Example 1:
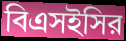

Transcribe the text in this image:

বিএসইসির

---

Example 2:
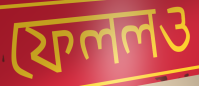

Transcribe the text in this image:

ফেললও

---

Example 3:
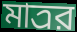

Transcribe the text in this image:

মাত্রর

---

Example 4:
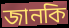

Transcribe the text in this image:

জানকি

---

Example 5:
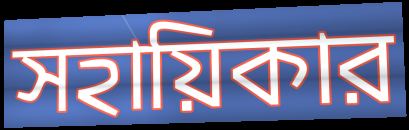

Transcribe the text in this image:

সহায়িকার